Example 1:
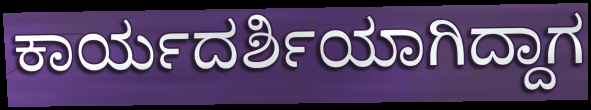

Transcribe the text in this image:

ಕಾರ್ಯದರ್ಶಿಯಾಗಿದ್ದಾಗ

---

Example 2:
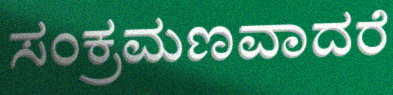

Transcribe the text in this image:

ಸಂಕ್ರಮಣವಾದರೆ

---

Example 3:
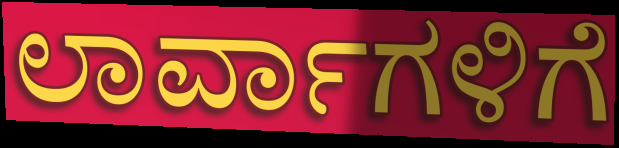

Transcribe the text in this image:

ಲಾರ್ವಾಗಳಿಗೆ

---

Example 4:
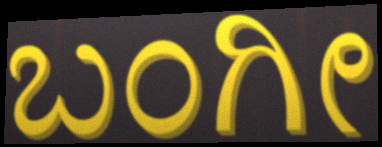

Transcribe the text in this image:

ಬಂಗೀ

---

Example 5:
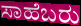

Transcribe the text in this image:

ಸಾಹೆಬರು